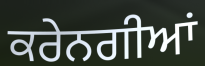
ਕਰੇਨਗੀਆਂ